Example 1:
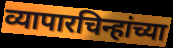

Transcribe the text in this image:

व्यापारचिन्हांच्या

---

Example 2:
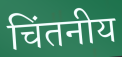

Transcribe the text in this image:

चिंतनीय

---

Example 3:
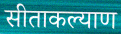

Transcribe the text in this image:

सीताकल्याण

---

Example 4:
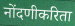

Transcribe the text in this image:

नोंदणीकरिता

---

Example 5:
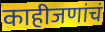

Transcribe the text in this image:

काहीजणांचं